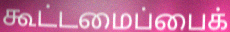
கூட்டமைப்பைக்